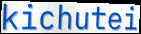
kichutei